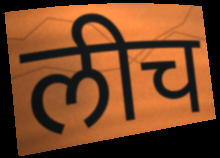
लीच